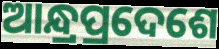
ଆନ୍ଧ୍ରପ୍ରଦେଶେ